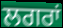
ਲਗਰਾਂ